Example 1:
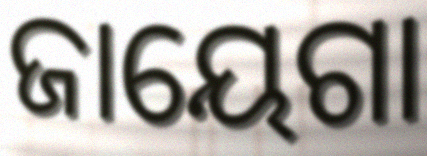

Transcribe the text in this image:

ଜାୟେଗା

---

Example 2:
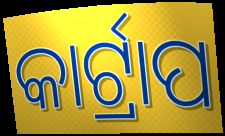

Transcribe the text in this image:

କାର୍ଟ୍ରାପ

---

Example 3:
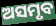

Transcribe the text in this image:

ଅସମୃବ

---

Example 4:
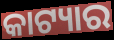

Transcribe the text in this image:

କାଟ୍ୟାର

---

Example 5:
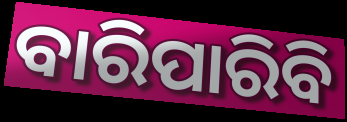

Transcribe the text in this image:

ବାରିପାରିବି